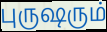
புருஷரும்